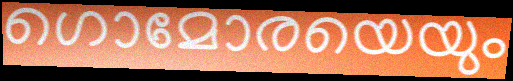
ഗൊമോരയെയും